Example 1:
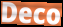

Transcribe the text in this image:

Deco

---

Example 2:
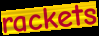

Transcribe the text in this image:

rackets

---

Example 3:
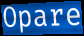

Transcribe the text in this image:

Opare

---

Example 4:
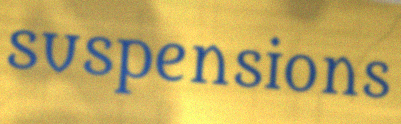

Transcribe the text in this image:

suspensions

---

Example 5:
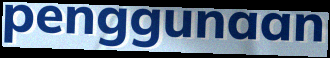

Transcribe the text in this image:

penggunaan